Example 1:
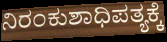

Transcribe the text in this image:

ನಿರಂಕುಶಾಧಿಪತ್ಯಕ್ಕೆ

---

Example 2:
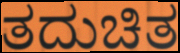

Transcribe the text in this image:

ತದುಚಿತ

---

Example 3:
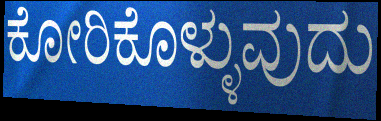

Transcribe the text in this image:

ಕೋರಿಕೊಳ್ಳುವುದು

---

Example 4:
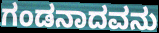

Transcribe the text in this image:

ಗಂಡನಾದವನು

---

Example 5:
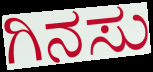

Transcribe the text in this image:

ಗಿನಸು